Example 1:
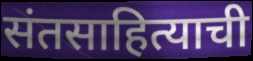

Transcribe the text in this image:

संतसाहित्याची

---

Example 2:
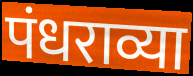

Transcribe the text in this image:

पंधराव्या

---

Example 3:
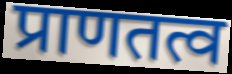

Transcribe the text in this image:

प्राणतत्व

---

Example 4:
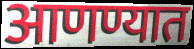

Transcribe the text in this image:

आणण्यात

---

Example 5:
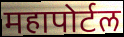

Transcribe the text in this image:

महापोर्टल